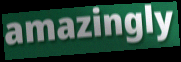
amazingly